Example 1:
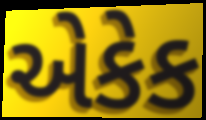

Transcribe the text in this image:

એકેક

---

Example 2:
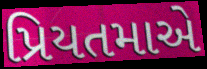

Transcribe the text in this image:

પ્રિયતમાએ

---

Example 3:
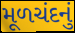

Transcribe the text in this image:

મૂળચંદનું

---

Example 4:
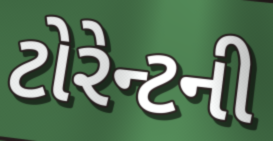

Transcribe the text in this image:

ટોરેન્ટની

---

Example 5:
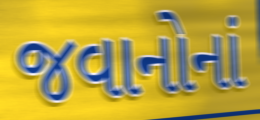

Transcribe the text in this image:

જવાનોનાં